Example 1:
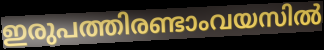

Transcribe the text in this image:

ഇരുപത്തിരണ്ടാംവയസിൽ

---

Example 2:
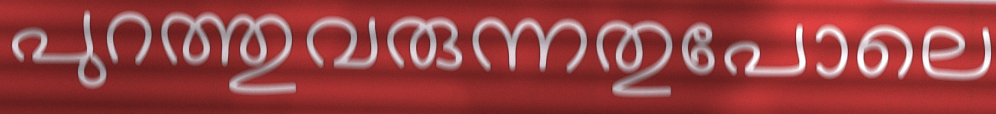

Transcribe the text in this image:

പുറത്തുവരുന്നതുപോലെ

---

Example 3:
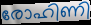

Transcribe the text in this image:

രോഹിണി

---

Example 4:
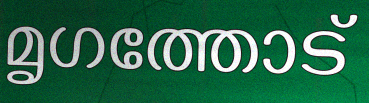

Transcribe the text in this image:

മൃഗത്തോട്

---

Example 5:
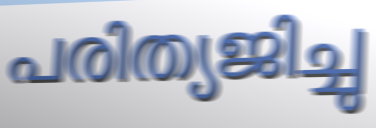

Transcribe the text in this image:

പരിത്യജിച്ചു